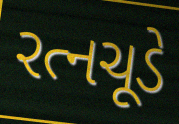
રત્નચૂડે